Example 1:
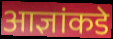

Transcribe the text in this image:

आज्ञांकडे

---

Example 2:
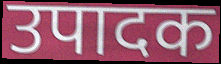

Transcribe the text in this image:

उपादक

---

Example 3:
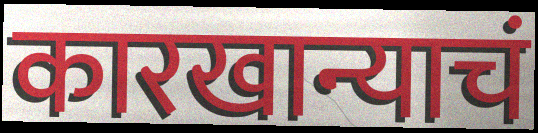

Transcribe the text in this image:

कारखान्याचं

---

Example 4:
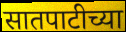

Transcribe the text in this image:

सातपाटीच्या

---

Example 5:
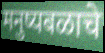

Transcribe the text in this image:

मनुष्यबळाचे